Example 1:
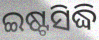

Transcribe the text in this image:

ଇଷ୍ଟସିଦ୍ଧି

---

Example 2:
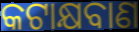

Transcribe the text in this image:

କଟାକ୍ଷବାଣ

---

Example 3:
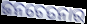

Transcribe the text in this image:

ଜନଚେତନାର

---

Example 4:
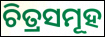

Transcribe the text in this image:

ଚିତ୍ରସମୂହ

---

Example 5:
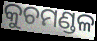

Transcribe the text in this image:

କୁଚମଣ୍ଡଳ